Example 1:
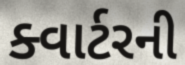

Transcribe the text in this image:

ક્વાર્ટરની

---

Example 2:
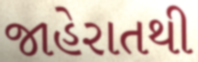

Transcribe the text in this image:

જાહેરાતથી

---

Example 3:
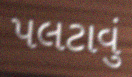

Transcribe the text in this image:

પલટાવું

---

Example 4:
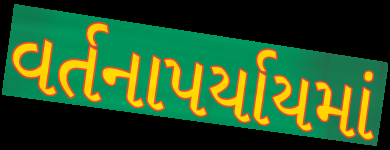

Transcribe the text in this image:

વર્તનાપર્યાયમાં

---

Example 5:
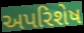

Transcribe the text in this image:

અપરિશેષ